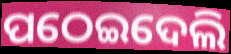
ପଠେଇଦେଲି